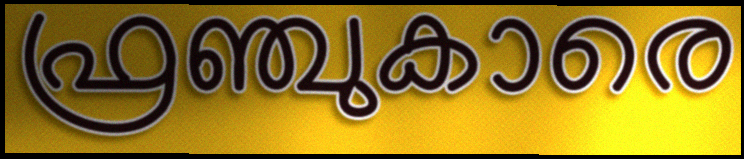
ഫ്രഞ്ചുകാരെ